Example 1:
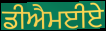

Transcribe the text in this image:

ਡੀਐਮਈਏ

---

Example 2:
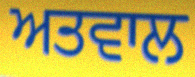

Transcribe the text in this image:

ਅਤਵਾਲ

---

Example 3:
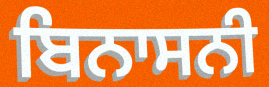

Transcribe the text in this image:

ਬਿਨਾਸਨੀ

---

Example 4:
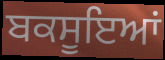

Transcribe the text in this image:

ਬਕਸੂਇਆਂ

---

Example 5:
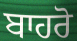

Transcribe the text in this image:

ਬਾਹਰੋ